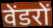
वेंडरों